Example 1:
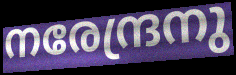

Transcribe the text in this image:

നരേന്ദ്രനു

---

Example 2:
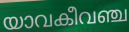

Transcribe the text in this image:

യാവകീവഞ്ച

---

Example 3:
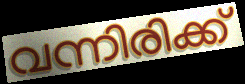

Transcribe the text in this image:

വന്നിരിക്ക്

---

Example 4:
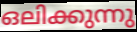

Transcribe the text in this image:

ഒലിക്കുന്നു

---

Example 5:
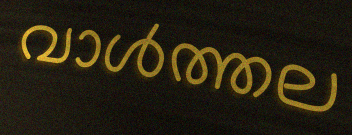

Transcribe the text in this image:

വാൾത്തല